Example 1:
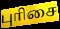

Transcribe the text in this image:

புரிசை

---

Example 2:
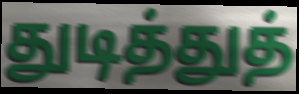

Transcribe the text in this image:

துடித்துத்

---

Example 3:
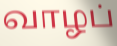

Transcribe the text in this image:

வாழப்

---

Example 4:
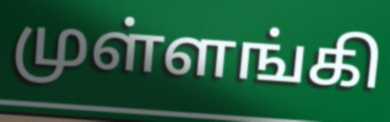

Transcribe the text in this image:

முள்ளங்கி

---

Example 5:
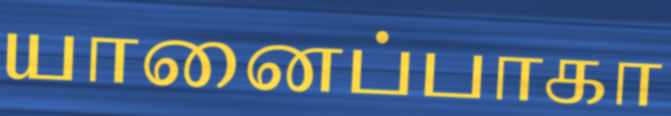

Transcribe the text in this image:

யானைப்பாகா